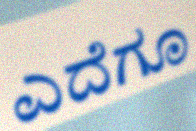
ಎದೆಗೂ